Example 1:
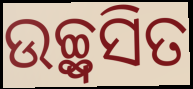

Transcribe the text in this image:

ଉଚ୍ଛ୍ୱସିତ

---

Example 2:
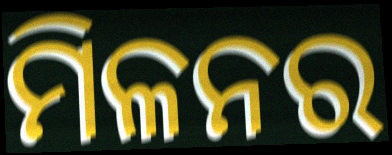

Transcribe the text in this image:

ମିଳନର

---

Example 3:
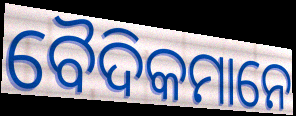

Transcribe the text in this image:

ବୈଦିକମାନେ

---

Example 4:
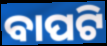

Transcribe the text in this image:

ବାପଟି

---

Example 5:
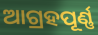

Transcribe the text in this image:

ଆଗ୍ରହପୂର୍ଣ୍ଣ